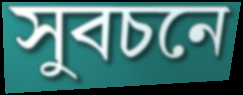
সুবচনে